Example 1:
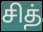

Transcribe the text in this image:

சித்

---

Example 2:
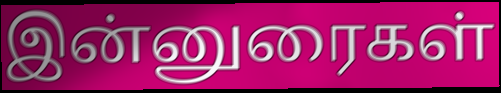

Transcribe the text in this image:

இன்னுரைகள்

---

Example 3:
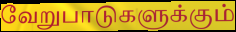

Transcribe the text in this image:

வேறுபாடுகளுக்கும்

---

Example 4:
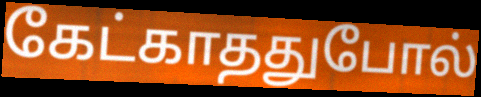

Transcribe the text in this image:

கேட்காததுபோல்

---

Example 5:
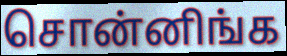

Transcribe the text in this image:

சொன்னிங்க